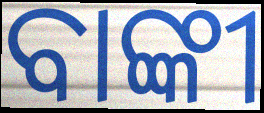
ବାଙ୍କୀ